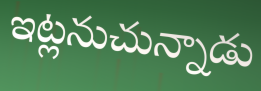
ఇట్లనుచున్నాడు